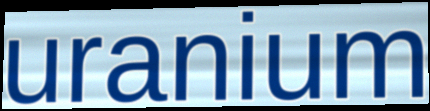
uranium